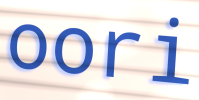
oori